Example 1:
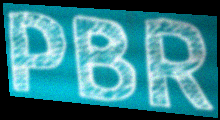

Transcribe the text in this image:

PBR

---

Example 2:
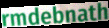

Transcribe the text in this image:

rmdebnath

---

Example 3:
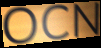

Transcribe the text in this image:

OCN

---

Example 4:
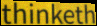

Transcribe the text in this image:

thinketh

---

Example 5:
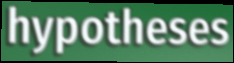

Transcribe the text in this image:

hypotheses